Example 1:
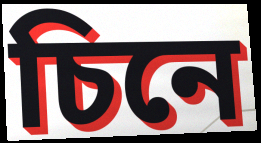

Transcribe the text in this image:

চিনে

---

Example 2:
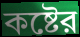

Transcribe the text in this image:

কষ্টের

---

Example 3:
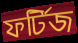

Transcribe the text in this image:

ফর্টিজ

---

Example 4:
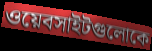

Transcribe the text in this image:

ওয়েবসাইটগুলোকে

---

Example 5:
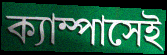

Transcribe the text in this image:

ক্যাম্পাসেই